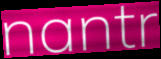
nantr